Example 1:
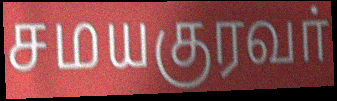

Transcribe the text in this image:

சமயகுரவர்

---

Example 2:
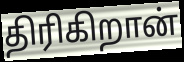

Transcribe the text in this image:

திரிகிறான்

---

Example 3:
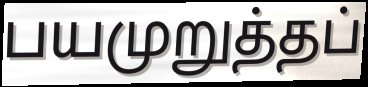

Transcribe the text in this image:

பயமுறுத்தப்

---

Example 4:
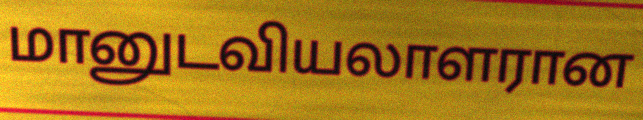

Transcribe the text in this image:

மானுடவியலாளரான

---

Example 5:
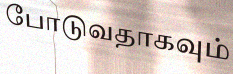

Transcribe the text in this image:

போடுவதாகவும்